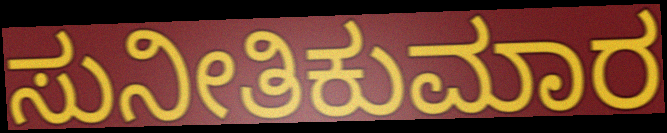
ಸುನೀತಿಕುಮಾರ